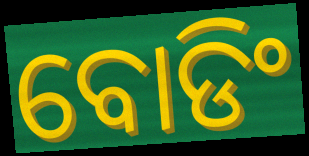
ବୋଡିଂ